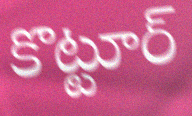
కొట్టూర్